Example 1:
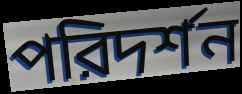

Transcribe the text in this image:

পরিদর্শন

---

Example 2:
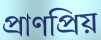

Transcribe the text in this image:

প্রাণপ্রিয়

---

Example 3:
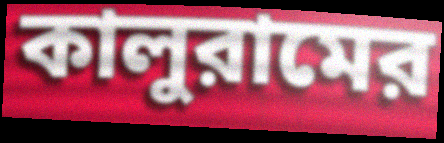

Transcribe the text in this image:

কালুরামের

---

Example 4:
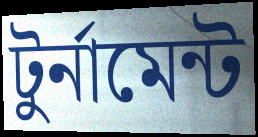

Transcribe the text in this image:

টুর্নামেন্ট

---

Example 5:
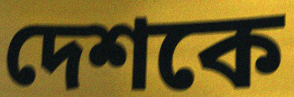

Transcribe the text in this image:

দেশকে